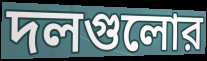
দলগুলোর